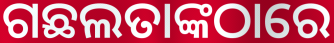
ଗଛଲତାଙ୍କଠାରେ